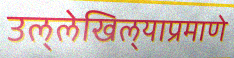
उल्लेखिल्याप्रमाणे